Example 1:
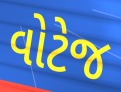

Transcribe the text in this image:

વોટેજ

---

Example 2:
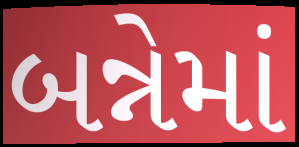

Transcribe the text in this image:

બન્નેમાં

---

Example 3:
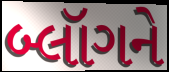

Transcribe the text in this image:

બ્લૉગને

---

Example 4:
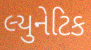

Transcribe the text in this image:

લ્યુનેટિક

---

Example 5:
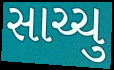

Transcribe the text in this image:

સાચ્ચુ